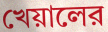
খেয়ালের